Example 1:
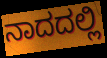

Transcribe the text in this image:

ನಾದದಲ್ಲಿ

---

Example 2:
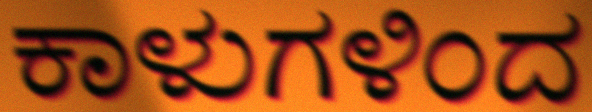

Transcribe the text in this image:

ಕಾಳುಗಳಿಂದ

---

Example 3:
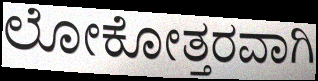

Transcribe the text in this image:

ಲೋಕೋತ್ತರವಾಗಿ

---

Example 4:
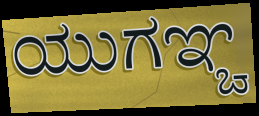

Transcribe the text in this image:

ಯುಗಞ್ಚ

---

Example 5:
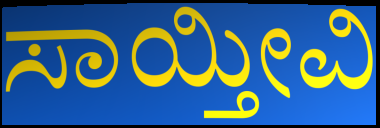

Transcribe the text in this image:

ಸಾಯ್ತೀವಿ